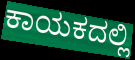
ಕಾಯಕದಲ್ಲಿ